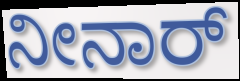
ನೀನಾರ್